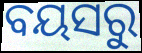
ବୟସରୁ